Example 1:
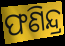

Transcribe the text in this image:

ଫଣିନ୍ଦ୍ର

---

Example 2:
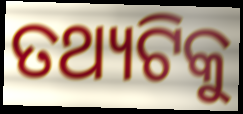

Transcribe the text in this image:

ତଥ୍ୟଟିକୁ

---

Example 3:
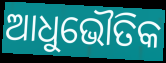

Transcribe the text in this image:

ଆଧୁଭୌତିକ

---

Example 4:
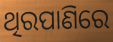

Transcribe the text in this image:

ଥିରପାଣିରେ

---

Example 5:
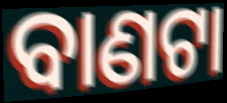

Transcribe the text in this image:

ବାଣଟା